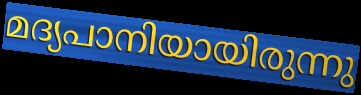
മദ്യപാനിയായിരുന്നു